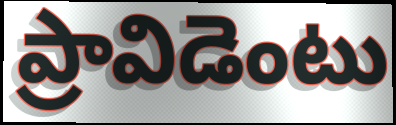
ప్రావిడెంటు